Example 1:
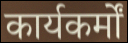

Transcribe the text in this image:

कार्यकर्मों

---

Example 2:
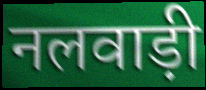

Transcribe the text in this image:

नलवाड़ी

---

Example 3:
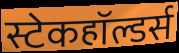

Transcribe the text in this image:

स्टेकहॉल्डर्स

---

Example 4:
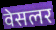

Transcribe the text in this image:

वेसलर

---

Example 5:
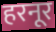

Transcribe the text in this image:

हरनूर